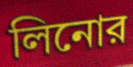
লিনোর